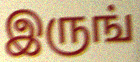
இருங்